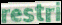
restri